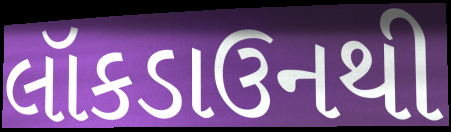
લૉકડાઉનથી